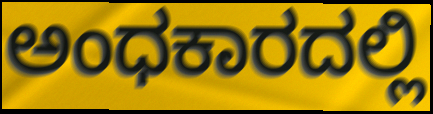
ಅಂಧಕಾರದಲ್ಲಿ